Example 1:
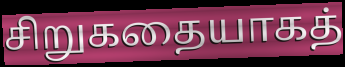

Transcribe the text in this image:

சிறுகதையாகத்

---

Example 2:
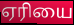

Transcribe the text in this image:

ஏரியை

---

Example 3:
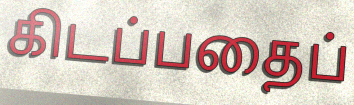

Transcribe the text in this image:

கிடப்பதைப்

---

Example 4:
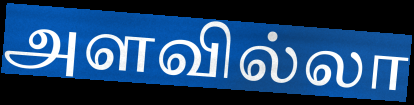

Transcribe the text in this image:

அளவில்லா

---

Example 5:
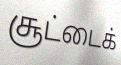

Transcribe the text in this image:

சூட்டைக்